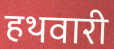
हथवारी